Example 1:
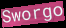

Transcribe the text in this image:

Sworgo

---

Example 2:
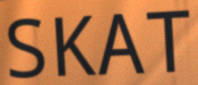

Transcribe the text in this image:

SKAT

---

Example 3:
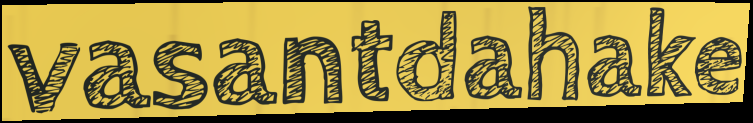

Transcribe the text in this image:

vasantdahake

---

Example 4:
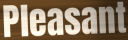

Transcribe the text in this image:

Pleasant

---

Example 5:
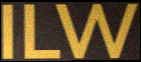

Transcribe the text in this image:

ILW